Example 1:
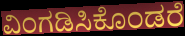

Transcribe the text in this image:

ವಿಂಗಡಿಸಿಕೊಂಡರೆ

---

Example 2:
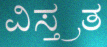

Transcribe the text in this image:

ವಿಸ್ತ್ರತ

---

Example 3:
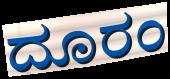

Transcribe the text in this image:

ದೂರಂ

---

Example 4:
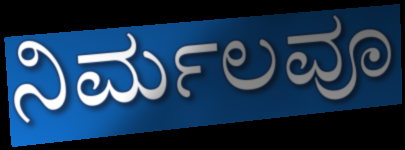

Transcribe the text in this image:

ನಿರ್ಮಲವೂ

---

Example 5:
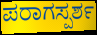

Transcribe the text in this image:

ಪರಾಗಸ್ಪರ್ಶ